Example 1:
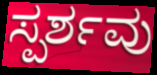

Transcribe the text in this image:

ಸ್ಪರ್ಶವು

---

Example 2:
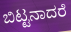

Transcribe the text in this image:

ಬಿಟ್ಟನಾದರೆ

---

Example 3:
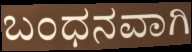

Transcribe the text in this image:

ಬಂಧನವಾಗಿ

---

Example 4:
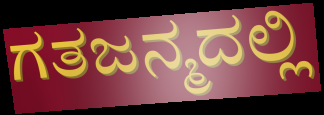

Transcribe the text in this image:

ಗತಜನ್ಮದಲ್ಲಿ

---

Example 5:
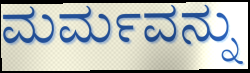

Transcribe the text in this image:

ಮರ್ಮವನ್ನು